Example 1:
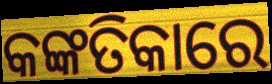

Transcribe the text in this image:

କଙ୍କତିକାରେ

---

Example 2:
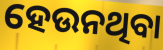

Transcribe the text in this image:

ହେଉନଥିବା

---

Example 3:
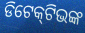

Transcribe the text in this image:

ଡିଟେକ୍‌ଟିଭଙ୍କ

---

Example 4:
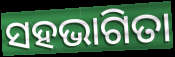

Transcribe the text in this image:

ସହଭାଗିତା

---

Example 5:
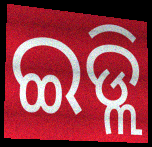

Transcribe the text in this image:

ଇଡ୍ଲି